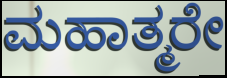
ಮಹಾತ್ಮರೇ